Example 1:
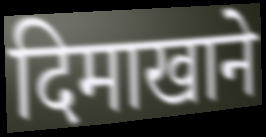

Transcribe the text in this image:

दिमाखाने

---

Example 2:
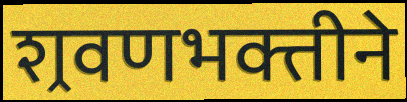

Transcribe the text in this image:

श्रवणभक्तीने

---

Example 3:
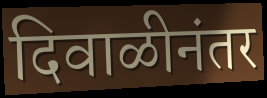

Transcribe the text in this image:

दिवाळीनंतर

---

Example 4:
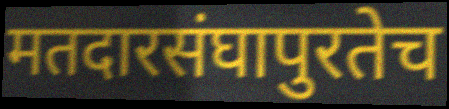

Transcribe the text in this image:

मतदारसंघापुरतेच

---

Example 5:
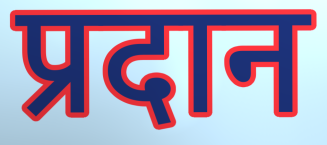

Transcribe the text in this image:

प्रदान